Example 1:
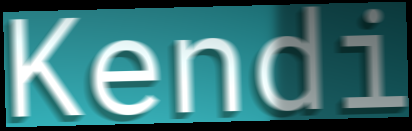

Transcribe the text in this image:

Kendi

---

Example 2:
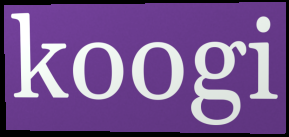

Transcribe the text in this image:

koogi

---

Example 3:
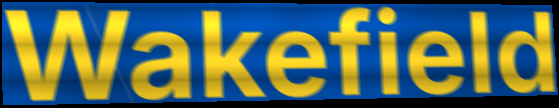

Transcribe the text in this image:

Wakefield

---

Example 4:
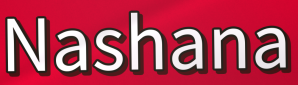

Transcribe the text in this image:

Nashana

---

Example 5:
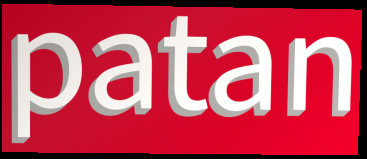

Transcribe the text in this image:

patan